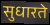
सुधारते